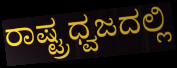
ರಾಷ್ಟ್ರಧ್ವಜದಲ್ಲಿ